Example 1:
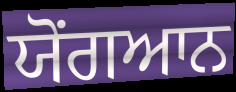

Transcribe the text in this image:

ਯੋਂਗਆਨ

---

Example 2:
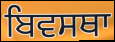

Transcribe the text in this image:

ਬਿਵਸਥਾ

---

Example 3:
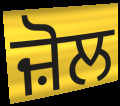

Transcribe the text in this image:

ਜ਼ੋਲ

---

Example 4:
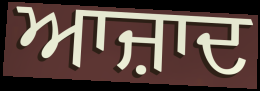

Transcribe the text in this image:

ਆਜ਼ਾਦ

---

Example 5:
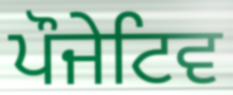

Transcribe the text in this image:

ਪੌਜੇਟਿਵ